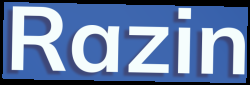
Razin